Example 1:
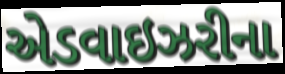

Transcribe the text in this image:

એડવાઇઝરીના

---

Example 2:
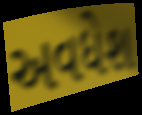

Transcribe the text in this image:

અવધેશ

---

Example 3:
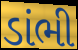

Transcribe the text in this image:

ડાંભી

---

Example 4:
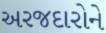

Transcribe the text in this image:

અરજદારોને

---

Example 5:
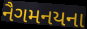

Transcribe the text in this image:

નૈગમનયના